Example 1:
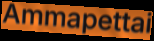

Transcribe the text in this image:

Ammapettai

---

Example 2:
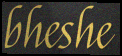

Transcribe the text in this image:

bheshe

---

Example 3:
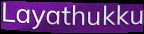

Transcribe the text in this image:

Layathukku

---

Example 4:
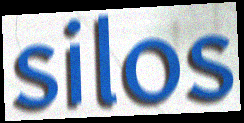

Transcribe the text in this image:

silos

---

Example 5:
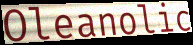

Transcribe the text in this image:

Oleanolic